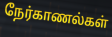
நேர்காணல்கள்